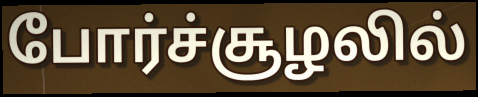
போர்ச்சூழலில்